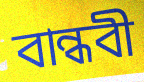
বান্ধবী